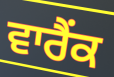
ਵਾਰੈਂਕ